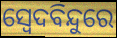
ସ୍ୱେଦବିନ୍ଦୁରେ